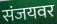
संजयवर